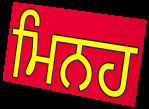
ਮਿਨਹ